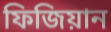
ফিজিয়ান